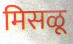
मिसळू